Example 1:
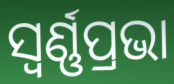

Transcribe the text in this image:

ସ୍ୱର୍ଣ୍ଣପ୍ରଭା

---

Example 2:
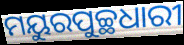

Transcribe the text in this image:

ମୟୁରପୁଚ୍ଛଧାରୀ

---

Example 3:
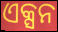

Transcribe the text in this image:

ଏକ୍ସନ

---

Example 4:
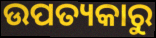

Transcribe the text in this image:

ଉପତ୍ୟକାରୁ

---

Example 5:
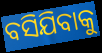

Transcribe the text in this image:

ବସିଯିବାକୁ